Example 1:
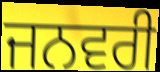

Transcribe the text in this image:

ਜਨਵਰੀ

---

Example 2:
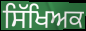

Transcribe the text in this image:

ਸਿੱਖਿਅਕ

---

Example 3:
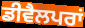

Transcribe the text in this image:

ਡੀਵੈਲਪਰਾਂ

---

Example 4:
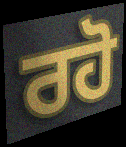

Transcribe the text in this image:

ਰਹੋ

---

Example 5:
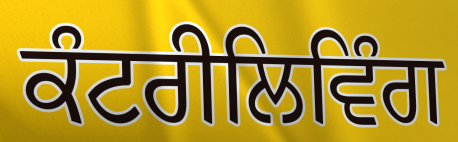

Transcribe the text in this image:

ਕੰਟਰੀਲਿਵਿੰਗ